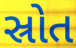
સ્રોત